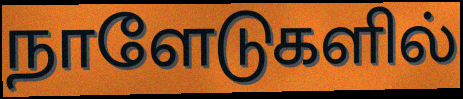
நாளேடுகளில்